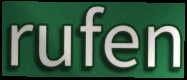
rufen